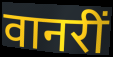
वानरीं